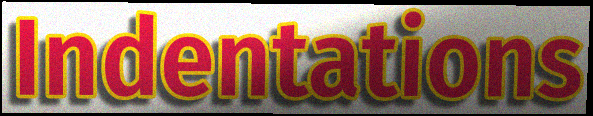
Indentations